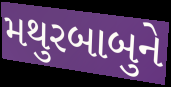
મથુરબાબુને